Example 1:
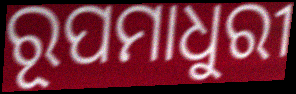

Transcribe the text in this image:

ରୂପମାଧୁରୀ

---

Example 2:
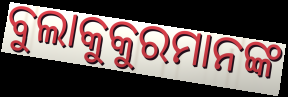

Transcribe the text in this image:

ବୁଲାକୁକୁରମାନଙ୍କ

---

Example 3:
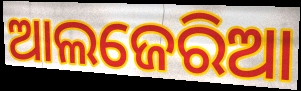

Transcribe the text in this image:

ଆଲଜେରିଆ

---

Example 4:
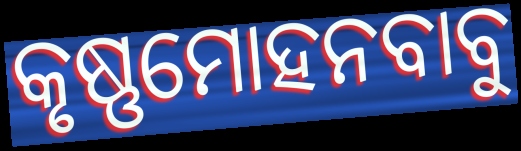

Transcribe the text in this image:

କୃଷ୍ଣମୋହନବାବୁ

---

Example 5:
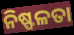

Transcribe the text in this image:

ନିଷ୍ଫଳତା